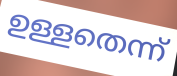
ഉള്ളതെന്ന്